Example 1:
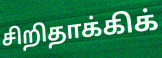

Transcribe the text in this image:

சிறிதாக்கிக்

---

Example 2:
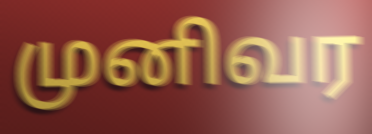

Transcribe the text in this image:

முனிவர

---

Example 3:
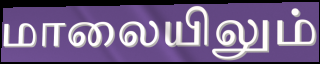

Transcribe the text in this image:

மாலையிலும்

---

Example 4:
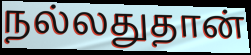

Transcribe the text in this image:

நல்லதுதான்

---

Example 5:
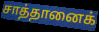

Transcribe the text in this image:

சாத்தானைக்